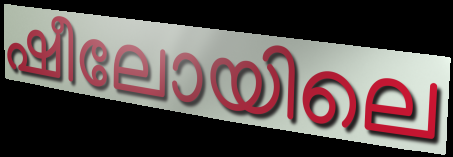
ഷീലോയിലെ